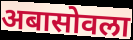
अबासोवला